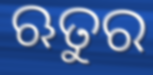
ଋତୁର